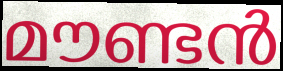
മൗണ്ടൻ